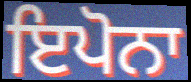
ਇਪੋਨਾ